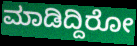
ಮಾಡಿದ್ದಿರೋ